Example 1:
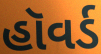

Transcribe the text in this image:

હૉવર્ડ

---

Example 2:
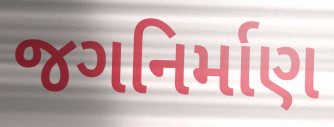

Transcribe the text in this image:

જગનિર્માણ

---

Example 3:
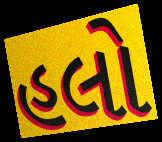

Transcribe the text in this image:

હલો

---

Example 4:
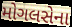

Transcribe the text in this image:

મોગલસેના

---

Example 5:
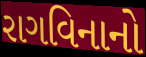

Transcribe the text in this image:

રાગવિનાનો